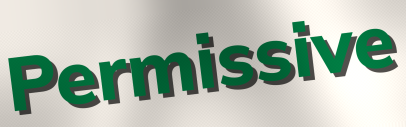
Permissive